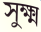
সুক্ষ্ম